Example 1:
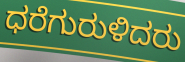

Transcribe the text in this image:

ಧರೆಗುರುಳಿದರು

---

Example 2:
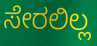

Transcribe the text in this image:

ಸೇರಲಿಲ್ಲ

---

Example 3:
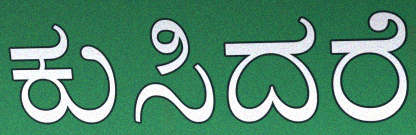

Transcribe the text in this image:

ಕುಸಿದರೆ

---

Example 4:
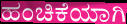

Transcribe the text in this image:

ಹಂಚಿಕೆಯಾಗಿ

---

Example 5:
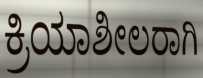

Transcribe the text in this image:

ಕ್ರಿಯಾಶೀಲರಾಗಿ